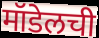
मॉडेलची